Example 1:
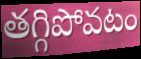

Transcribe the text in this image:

తగ్గిపోవటం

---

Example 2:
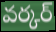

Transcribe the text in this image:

వర్కర్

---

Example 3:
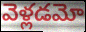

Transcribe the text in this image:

వెళ్లడమో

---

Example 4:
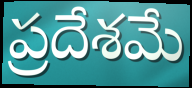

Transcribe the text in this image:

ప్రదేశమే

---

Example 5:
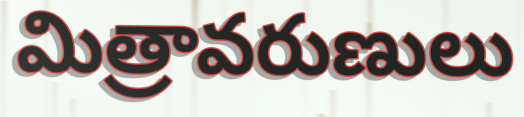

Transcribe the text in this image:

మిత్రావరుణులు